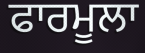
ਫਾਰਮੂਲਾ